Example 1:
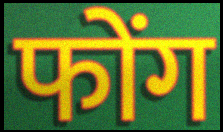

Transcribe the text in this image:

फोंग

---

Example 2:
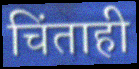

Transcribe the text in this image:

चिंताही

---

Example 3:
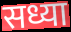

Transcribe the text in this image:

सध्या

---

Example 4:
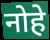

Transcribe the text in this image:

नोहे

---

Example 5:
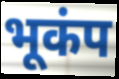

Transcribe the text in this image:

भूकंप